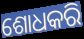
ଶୋଧକରି